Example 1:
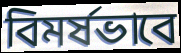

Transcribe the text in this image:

বিমর্ষভাবে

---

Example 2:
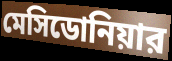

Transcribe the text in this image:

মেসিডোনিয়ার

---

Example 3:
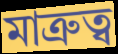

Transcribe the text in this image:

মাত্রুত্ব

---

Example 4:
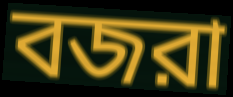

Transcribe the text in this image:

বজরা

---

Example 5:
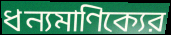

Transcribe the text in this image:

ধন্যমাণিক্যের